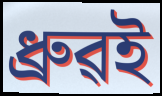
ধ্ৰুৱই